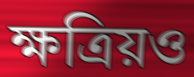
ক্ষত্রিয়ও